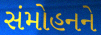
સંમોહનને